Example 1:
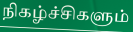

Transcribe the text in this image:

நிகழ்ச்சிகளும்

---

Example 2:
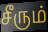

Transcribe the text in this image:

சீரும்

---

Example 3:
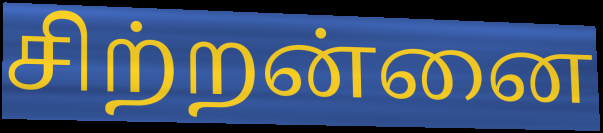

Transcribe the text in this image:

சிற்றன்னை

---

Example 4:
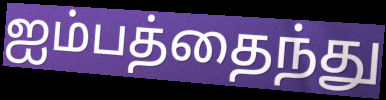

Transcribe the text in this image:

ஐம்பத்தைந்து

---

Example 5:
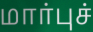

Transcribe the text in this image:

மார்புச்